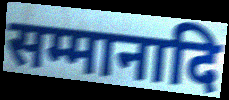
सम्मानादि